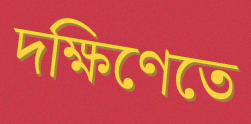
দক্ষিণেতে